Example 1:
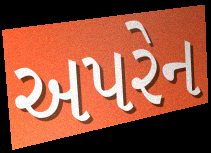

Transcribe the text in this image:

અપરેન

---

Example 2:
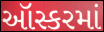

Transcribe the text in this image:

ઑસ્કરમાં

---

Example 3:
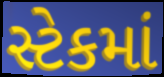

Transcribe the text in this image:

સ્ટેકમાં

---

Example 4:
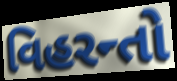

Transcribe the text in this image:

વિહરન્તો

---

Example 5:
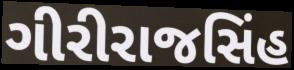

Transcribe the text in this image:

ગીરીરાજસિંહ